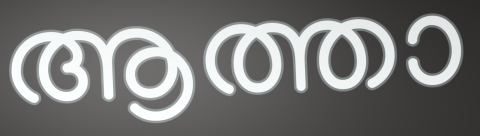
ആത്താ